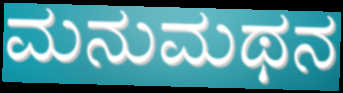
ಮನುಮಥನ